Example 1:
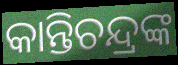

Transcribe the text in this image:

କାନ୍ତିଚନ୍ଦ୍ରଙ୍କ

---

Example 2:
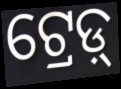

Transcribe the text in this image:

ଟ୍ରେଡ଼୍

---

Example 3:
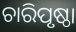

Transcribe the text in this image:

ଚାରିପୃଷ୍ଠା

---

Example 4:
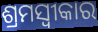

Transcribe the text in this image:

ଶ୍ରମସ୍ୱୀକାର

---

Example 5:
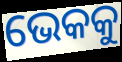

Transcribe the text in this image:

ଭେକକୁ